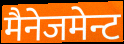
मैनेजमेन्ट